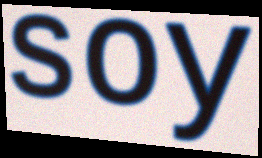
soy